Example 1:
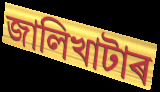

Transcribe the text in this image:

জালিখাটাৰ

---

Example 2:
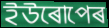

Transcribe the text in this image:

ইউৰোপেৰ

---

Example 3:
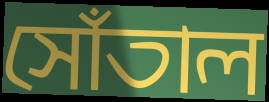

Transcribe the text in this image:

সোঁতাল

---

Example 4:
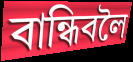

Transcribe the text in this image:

বান্ধিবলৈ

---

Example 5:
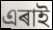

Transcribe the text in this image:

এৰাই